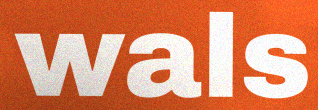
wals